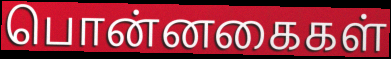
பொன்னகைகள்